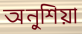
অনুশিয়া